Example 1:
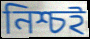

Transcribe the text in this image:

নিশ্চই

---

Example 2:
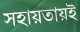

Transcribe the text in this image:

সহায়তায়ই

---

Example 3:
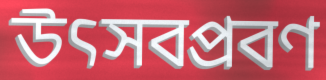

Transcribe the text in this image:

উৎসবপ্রবণ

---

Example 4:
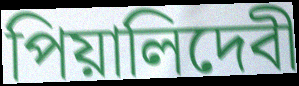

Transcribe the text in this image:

পিয়ালিদেবী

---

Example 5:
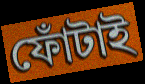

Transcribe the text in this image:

ফোঁটাই